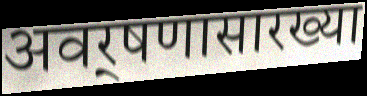
अवर्षणासारख्या